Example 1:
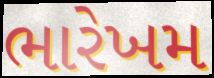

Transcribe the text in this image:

ભારેખમ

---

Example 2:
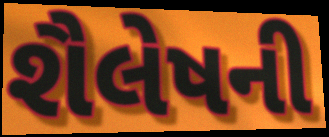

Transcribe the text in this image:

શૈલેષની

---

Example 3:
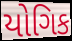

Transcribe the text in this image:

યોગિક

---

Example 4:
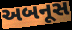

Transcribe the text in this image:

અબનૂસ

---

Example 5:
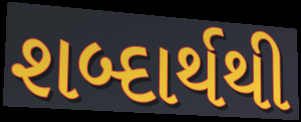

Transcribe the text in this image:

શબ્દાર્થથી